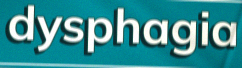
dysphagia